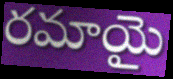
రమాయై